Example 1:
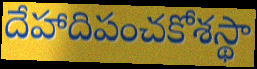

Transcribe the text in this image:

దేహాదిపంచకోశస్థా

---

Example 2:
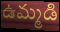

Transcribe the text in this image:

ఉమ్మడి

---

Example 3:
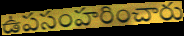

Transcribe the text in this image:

ఉపసంహరించారు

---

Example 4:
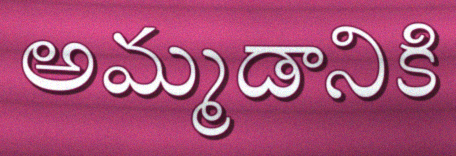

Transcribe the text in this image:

అమ్మడానికి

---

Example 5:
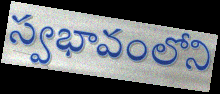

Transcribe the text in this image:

స్వభావంలోని